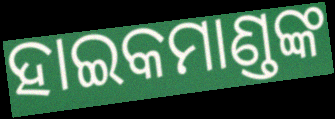
ହାଇକମାଣ୍ଡଙ୍କ